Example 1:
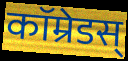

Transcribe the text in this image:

कॉम्रेडस्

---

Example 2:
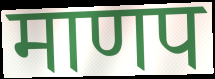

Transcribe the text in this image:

माणप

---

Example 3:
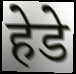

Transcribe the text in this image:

हेडे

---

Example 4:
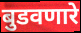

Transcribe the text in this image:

बुडवणारे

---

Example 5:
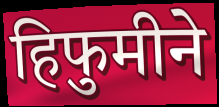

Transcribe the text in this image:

हिफुमीने